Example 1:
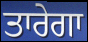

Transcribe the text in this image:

ਤਾਰੇਗਾ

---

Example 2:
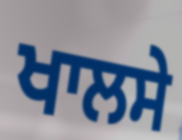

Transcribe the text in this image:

ਖਾਲਸੇ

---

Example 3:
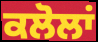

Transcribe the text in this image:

ਕਲੋਲਾਂ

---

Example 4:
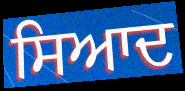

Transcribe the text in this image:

ਸਿਆਦ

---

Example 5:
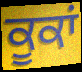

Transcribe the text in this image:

ਕੂਕਾਂ